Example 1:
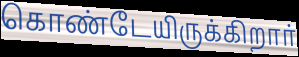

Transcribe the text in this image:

கொண்டேயிருக்கிறார்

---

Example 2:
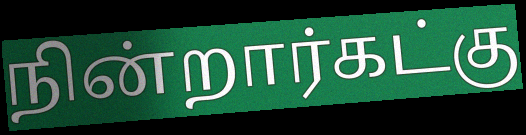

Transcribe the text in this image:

நின்றார்கட்கு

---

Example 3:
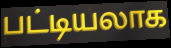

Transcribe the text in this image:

பட்டியலாக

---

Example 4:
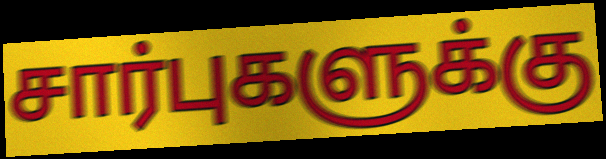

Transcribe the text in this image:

சார்புகளுக்கு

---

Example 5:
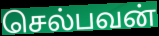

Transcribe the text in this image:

செல்பவன்